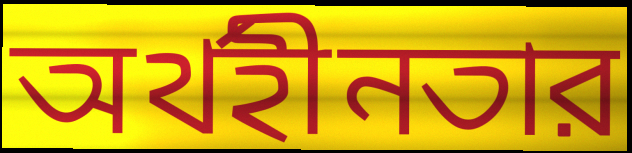
অর্থহীনতার